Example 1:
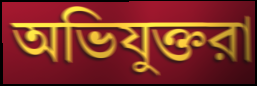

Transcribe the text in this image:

অভিযুক্তরা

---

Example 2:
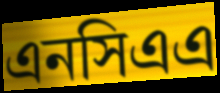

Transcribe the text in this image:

এনসিএএ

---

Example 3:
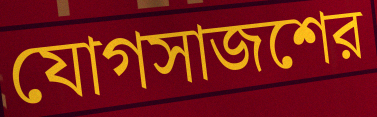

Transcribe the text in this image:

যোগসাজশের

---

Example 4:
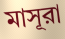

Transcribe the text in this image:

মাসূরা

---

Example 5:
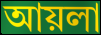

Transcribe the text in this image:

আয়লা